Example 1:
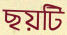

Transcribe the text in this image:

ছয়টি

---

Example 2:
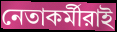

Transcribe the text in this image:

নেতাকর্মীরাই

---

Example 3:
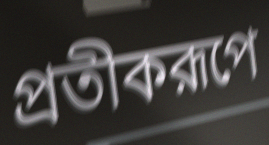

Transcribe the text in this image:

প্রতীকরূপে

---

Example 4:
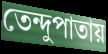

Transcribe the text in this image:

তেন্দুপাতায়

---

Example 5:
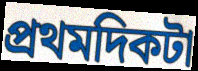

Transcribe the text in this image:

প্রথমদিকটা